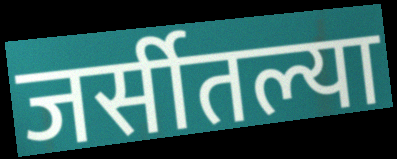
जर्सीतल्या